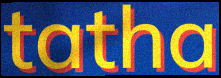
tatha